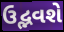
ઉદ્ભવશે